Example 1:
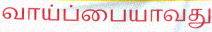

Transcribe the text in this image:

வாய்ப்பையாவது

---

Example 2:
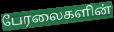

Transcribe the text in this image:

பேரலைகளின்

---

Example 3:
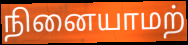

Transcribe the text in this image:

நினையாமற்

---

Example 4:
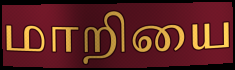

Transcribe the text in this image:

மாறியை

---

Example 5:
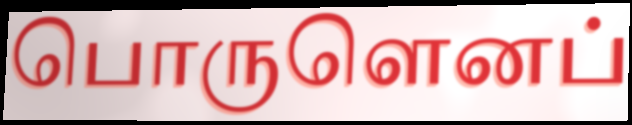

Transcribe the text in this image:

பொருளெனப்